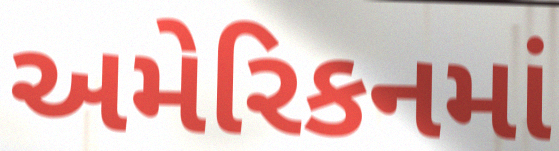
અમેરિકનમાં